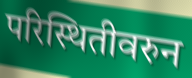
परिस्थितीवरुन